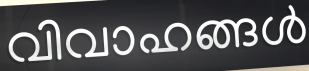
വിവാഹങ്ങൾ